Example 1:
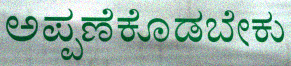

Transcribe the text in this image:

ಅಪ್ಪಣೆಕೊಡಬೇಕು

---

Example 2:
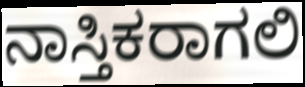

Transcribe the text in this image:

ನಾಸ್ತಿಕರಾಗಲಿ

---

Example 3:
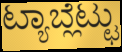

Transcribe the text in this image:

ಟ್ಯಾಬ್ಲೆಟ್ಟು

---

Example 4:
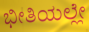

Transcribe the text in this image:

ಭೀತಿಯಲ್ಲೇ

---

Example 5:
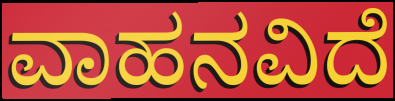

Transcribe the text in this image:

ವಾಹನವಿದೆ